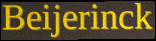
Beijerinck